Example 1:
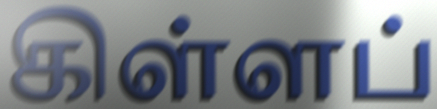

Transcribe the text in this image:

கிள்ளப்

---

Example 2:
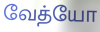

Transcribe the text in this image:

வேத்யோ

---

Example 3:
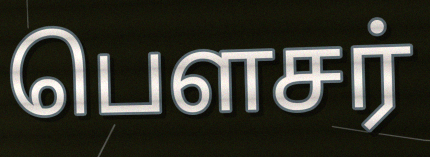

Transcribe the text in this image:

பௌசர்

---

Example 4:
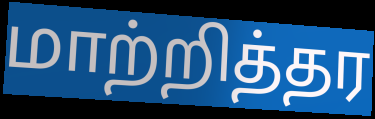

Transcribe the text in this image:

மாற்றித்தர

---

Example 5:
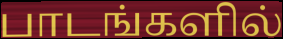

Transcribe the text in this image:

பாடங்களில்